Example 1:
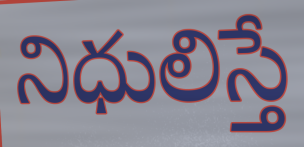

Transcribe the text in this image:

నిధులిస్తే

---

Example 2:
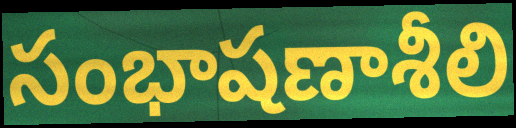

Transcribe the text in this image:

సంభాషణాశీలి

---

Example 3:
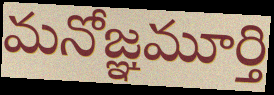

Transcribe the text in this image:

మనోజ్ఞమూర్తి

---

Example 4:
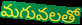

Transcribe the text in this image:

మగువలతో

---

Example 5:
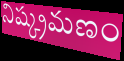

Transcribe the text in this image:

నిష్క్రమణం